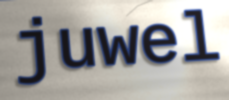
juwel